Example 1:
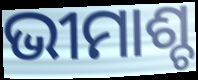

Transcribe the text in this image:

ଭୀମାଶ୍ଚ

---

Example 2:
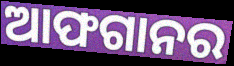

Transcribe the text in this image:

ଆଫଗାନର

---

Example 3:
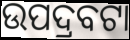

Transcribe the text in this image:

ଉପଦ୍ରବଟା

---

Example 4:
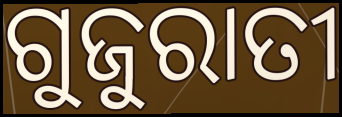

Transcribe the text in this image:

ଗୁଜୁରାତୀ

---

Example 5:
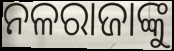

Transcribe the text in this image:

ନଳରାଜାଙ୍କୁ